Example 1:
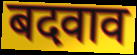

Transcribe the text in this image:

बदवाव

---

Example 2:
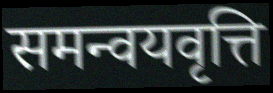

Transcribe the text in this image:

समन्वयवृत्ति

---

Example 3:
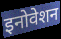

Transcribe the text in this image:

इनोवेशन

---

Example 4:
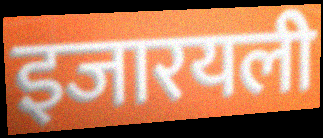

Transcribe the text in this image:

इजारयली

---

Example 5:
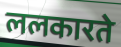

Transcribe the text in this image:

ललकारते